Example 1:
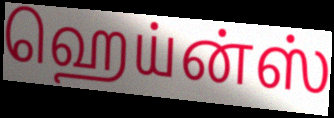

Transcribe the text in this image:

ஹெய்ன்ஸ்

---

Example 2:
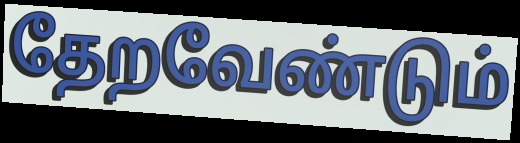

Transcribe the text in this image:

தேறவேண்டும்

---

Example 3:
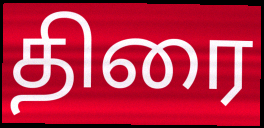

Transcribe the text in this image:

திரை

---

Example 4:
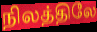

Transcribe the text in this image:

நிலத்திலே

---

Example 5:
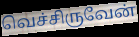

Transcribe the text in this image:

வெச்சிருவேன்